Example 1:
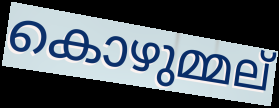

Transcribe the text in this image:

കൊഴുമ്മല്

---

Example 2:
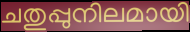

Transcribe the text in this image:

ചതുപ്പുനിലമായി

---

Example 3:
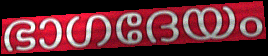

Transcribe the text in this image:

ഭാഗദേയം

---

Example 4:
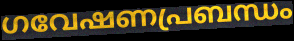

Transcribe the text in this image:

ഗവേഷണപ്രബന്ധം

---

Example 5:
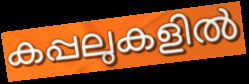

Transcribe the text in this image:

കപ്പലുകളിൽ